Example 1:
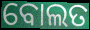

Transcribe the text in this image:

ବୋଲତ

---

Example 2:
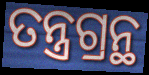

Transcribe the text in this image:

ତନ୍ତ୍ରଗ୍ରନ୍ଥ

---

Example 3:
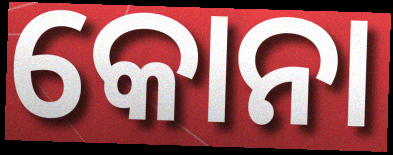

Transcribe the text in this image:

କୋନା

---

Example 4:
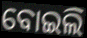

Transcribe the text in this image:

ବୋଇଲି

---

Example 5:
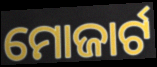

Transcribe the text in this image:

ମୋଜାର୍ଟ